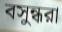
বসুন্ধরা